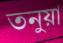
তনুয়া